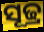
ସୂଢ୍ର